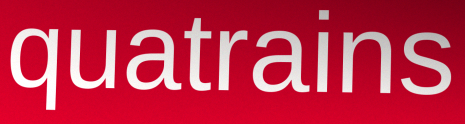
quatrains